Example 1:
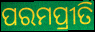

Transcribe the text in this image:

ପରମପ୍ରୀତି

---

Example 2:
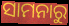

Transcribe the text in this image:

ସାମନାରୁ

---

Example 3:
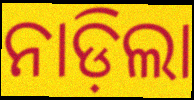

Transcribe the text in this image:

ନାଡ଼ିଲା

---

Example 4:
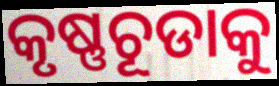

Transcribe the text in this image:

କୃଷ୍ଣଚୂଡାକୁ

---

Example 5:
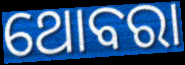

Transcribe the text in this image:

ଥୋବରା